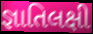
જ્ઞાતિલક્ષી